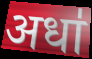
अधा॑